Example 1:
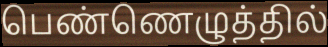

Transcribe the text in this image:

பெண்ணெழுத்தில்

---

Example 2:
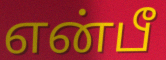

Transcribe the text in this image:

என்பீ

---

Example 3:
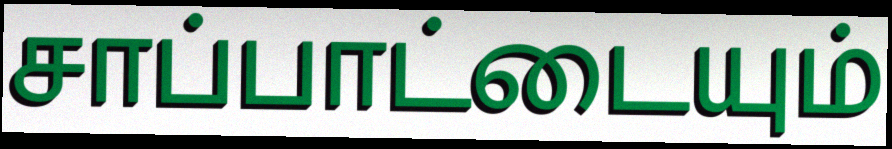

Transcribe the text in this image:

சாப்பாட்டையும்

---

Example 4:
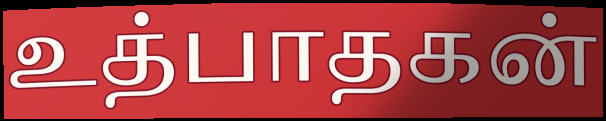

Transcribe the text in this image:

உத்பாதகன்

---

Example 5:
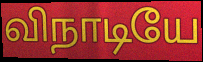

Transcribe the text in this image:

விநாடியே